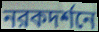
নরকদর্শনে